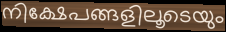
നിക്ഷേപങ്ങളിലൂടെയും